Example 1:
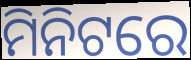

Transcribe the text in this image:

ମିନିଟରେ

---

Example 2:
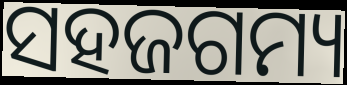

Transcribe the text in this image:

ସହଜଗମ୍ୟ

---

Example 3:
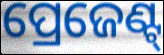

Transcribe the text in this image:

ପ୍ରେଜେଣ୍ଟ୍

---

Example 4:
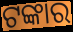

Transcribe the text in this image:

ଟଙ୍କାର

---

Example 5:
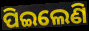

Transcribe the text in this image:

ପିଇଲେଣି